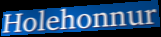
Holehonnur